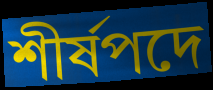
শীর্ষপদে